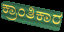
ಕ್ರಾಂತಿಕಾರ